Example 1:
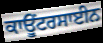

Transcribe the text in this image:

ਕਾਊਂਟਰਸਾਈਨ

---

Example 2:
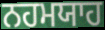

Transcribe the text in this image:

ਨਹਮਯਾਹ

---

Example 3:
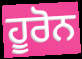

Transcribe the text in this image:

ਹੂਰੋਨ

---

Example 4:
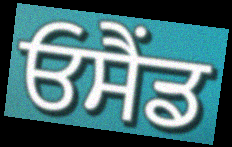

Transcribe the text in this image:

ਓਸੈਂਡ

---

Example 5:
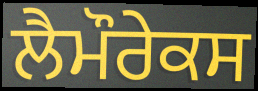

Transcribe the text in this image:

ਲੈਮੌਰੇਕਸ